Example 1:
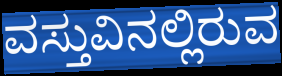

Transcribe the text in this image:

ವಸ್ತುವಿನಲ್ಲಿರುವ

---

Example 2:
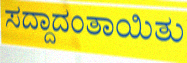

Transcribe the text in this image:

ಸದ್ದಾದಂತಾಯಿತು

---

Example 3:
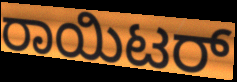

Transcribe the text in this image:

ರಾಯಿಟರ್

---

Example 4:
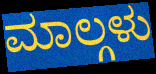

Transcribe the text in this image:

ಮಾಲ್ಗಳು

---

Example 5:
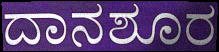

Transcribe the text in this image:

ದಾನಶೂರ